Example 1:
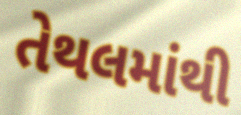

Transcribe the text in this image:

તેથલમાંથી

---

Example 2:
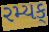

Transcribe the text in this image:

રમ્યક્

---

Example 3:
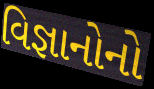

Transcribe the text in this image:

વિજ્ઞાનોનો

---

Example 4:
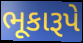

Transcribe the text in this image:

ભૂકારૂપે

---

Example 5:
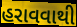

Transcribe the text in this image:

હરાવવાથી